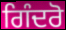
ਗਿੰਦਰੋ